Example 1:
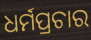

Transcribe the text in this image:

ଧର୍ମପ୍ରଚାର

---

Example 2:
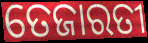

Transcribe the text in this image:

ତେଜାରତୀ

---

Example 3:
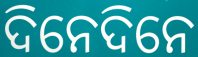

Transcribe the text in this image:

ଦିନେଦିନେ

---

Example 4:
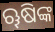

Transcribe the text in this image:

ୠଷିଙ୍କ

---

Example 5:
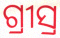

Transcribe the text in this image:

ଗ୍ରୀସ୍ର